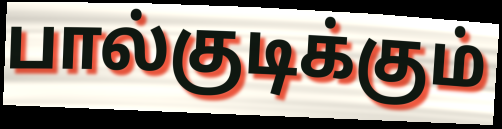
பால்குடிக்கும்